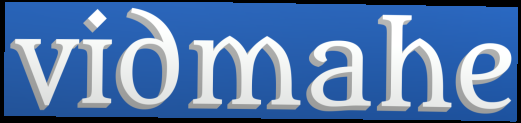
vidmahe